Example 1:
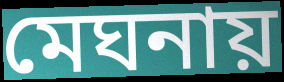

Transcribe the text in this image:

মেঘনায়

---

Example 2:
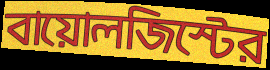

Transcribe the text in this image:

বায়োলজিস্টের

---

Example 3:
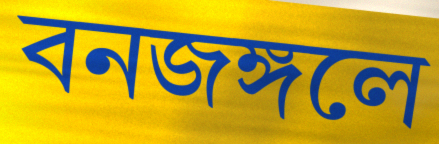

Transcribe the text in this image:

বনজঙ্গলে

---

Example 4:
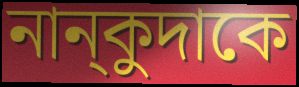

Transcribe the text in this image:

নান্‌কুদাকে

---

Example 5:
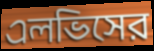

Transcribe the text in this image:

এলভিসের